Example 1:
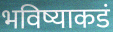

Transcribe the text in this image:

भविष्याकडं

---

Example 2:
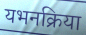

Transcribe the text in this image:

यभनक्रिया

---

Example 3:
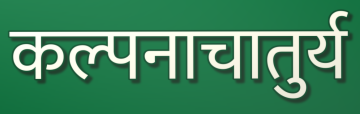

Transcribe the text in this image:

कल्पनाचातुर्य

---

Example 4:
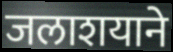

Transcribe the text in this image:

जलाशयाने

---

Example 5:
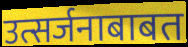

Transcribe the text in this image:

उत्सर्जनाबाबत